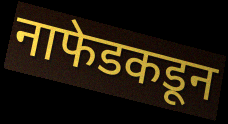
नाफेडकडून